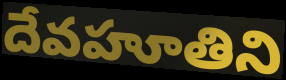
దేవహూతిని